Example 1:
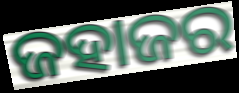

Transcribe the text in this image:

ଜହାଜର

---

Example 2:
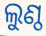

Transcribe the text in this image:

ଲୁଣ୍ଠ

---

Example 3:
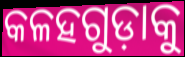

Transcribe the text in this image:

କଳହଗୁଡ଼ାକୁ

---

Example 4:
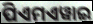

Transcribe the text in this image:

ପିଏମଏୱାଇ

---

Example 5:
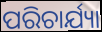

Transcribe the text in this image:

ପରିଚାର୍ଯ୍ୟା